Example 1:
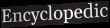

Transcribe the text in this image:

Encyclopedic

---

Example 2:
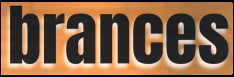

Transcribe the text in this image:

brances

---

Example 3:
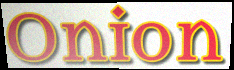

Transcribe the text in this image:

Onion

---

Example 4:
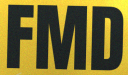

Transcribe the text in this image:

FMD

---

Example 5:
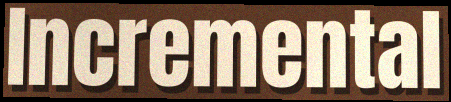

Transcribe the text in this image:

Incremental